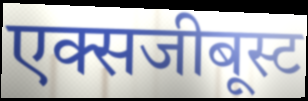
एक्सजीबूस्ट